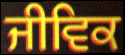
ਜੀਵਿਕ